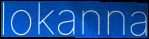
lokanna